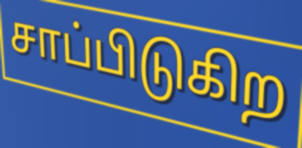
சாப்பிடுகிற